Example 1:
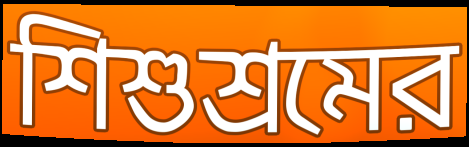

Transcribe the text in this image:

শিশুশ্রমের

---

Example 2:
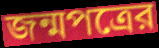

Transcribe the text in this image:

জন্মপত্রের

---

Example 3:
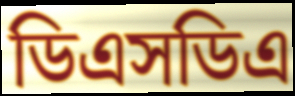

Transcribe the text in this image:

ডিএসডিএ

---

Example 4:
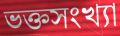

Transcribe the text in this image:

ভক্তসংখ্যা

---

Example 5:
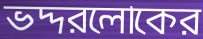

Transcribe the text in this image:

ভদ্দরলোকের